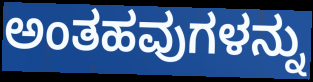
ಅಂತಹವುಗಳನ್ನು